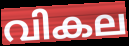
വികല